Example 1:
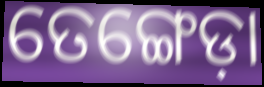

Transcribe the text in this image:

ତେଙ୍ଗେଡ଼ା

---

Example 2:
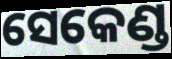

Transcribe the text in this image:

ସେକେଣ୍ଡ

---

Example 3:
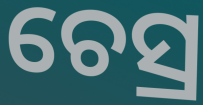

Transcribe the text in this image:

ଚେସ୍ର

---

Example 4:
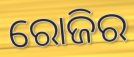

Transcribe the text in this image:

ରୋଜିର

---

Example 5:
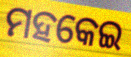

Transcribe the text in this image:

ମହକେଇ